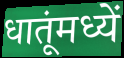
धातूंमध्यें